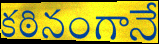
కఠినంగానే